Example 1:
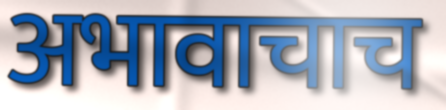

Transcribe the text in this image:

अभावाचाच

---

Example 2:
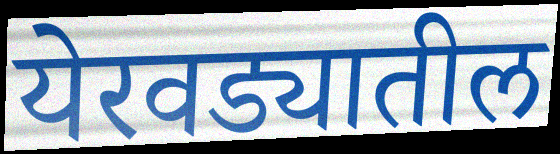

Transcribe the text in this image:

येरवड्यातील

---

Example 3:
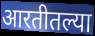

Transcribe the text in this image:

आरतीतल्या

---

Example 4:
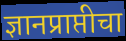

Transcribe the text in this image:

ज्ञानप्राप्तीचा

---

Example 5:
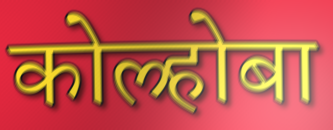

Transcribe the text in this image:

कोल्होबा